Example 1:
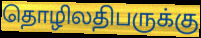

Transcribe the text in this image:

தொழிலதிபருக்கு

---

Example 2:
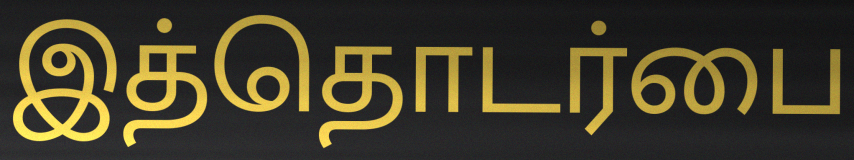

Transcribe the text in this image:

இத்தொடர்பை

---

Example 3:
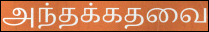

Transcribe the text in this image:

அந்தக்கதவை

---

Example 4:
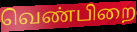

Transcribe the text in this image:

வெண்பிறை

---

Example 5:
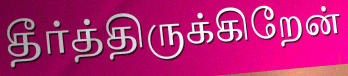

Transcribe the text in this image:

தீர்த்திருக்கிறேன்